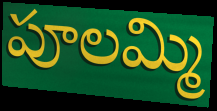
పూలమ్మి